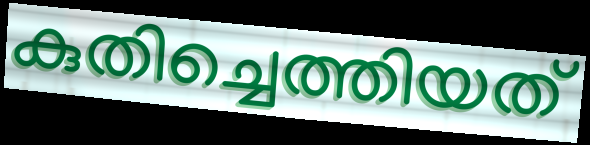
കുതിച്ചെത്തിയത്